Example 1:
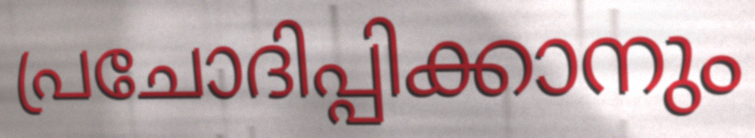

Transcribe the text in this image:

പ്രചോദിപ്പിക്കാനും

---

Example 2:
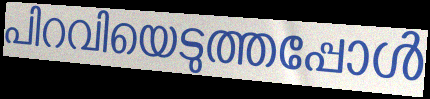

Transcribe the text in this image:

പിറവിയെടുത്തപ്പോൾ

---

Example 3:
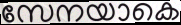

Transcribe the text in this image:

സേനയാകെ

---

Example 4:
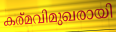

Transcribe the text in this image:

കര്മവിമുഖരായി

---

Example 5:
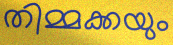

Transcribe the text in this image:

തിമ്മക്കയും